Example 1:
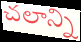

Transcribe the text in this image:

చలాన్ని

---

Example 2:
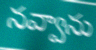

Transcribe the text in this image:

నవ్వాను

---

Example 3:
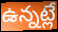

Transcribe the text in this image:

ఉన్నట్లే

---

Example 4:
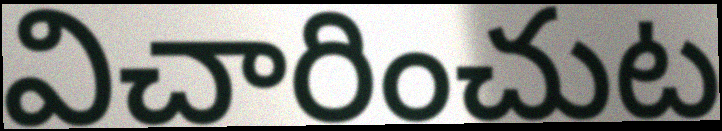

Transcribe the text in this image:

విచారించుట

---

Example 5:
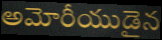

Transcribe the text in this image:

అమోరీయుడైన